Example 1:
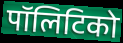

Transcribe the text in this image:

पॉलिटिको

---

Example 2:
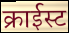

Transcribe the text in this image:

क्राईस्ट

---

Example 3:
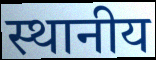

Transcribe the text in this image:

स्‍थानीय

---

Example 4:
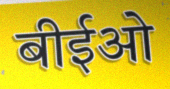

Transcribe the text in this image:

बीईओ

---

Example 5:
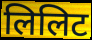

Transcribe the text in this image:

लिलिट